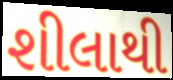
શીલાથી